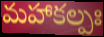
మహాకల్పః